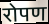
रोपण